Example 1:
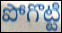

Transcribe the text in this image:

పోగొట్టి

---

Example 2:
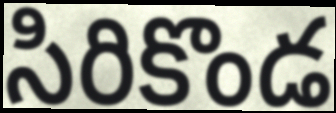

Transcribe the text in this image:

సిరికొండ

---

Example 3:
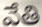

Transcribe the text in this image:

వేతి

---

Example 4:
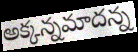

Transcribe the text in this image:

అక్కన్నమాదన్న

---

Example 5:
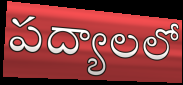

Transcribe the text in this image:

పద్యాలలో